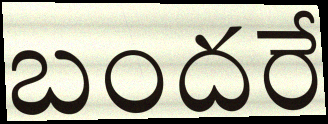
బందరే